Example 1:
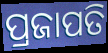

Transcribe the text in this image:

ପ୍ରଜାପତି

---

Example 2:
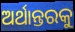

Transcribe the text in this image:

ଅର୍ଥାନ୍ତରକୁ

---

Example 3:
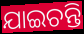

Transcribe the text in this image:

ଯାଇଚନ୍ତି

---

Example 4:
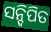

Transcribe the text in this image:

ସନ୍ଦିପିତ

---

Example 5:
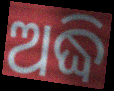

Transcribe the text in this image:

ଅଦ୍ଧି